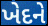
ખેદને